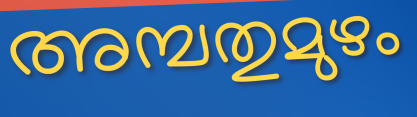
അമ്പതുമുഴം